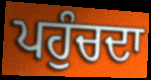
ਪਹੁੰਚਦਾ